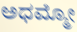
ಅಧಮ್ಮೋ